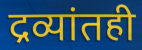
द्रव्यांतही